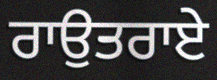
ਰਾਉਤਰਾਏ